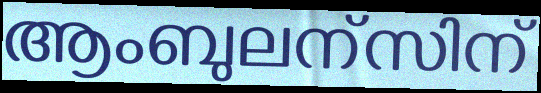
ആംബുലന്സിന്